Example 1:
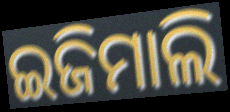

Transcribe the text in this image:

ଇଜିମାଲି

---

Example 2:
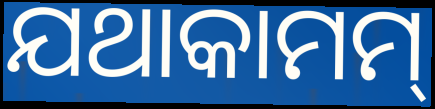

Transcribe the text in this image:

ଯଥାକାମମ୍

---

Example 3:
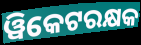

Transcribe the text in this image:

ୱିକେଟରକ୍ଷକ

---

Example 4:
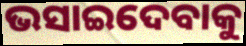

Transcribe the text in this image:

ଭସାଇଦେବାକୁ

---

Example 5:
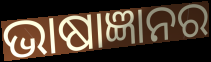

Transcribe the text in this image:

ଭାଷାଜ୍ଞାନର